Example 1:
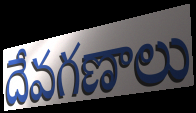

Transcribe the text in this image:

దేవగణాలు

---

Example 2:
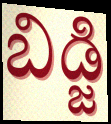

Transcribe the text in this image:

బిడ్జి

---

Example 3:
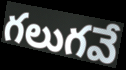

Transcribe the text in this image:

గలుగవే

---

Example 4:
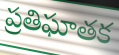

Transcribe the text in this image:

ప్రతిఘాతక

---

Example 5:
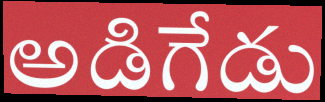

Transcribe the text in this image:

అడిగేడు